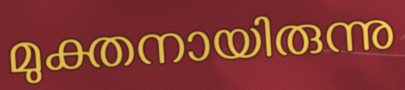
മുക്തനായിരുന്നു